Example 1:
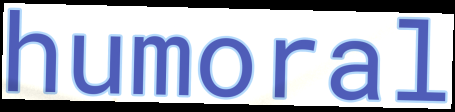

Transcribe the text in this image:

humoral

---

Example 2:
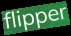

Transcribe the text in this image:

flipper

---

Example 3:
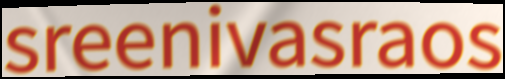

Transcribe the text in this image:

sreenivasraos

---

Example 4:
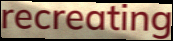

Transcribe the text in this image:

recreating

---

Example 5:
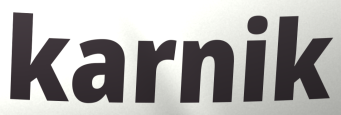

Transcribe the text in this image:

karnik